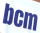
bcm